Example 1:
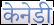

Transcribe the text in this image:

केनेडी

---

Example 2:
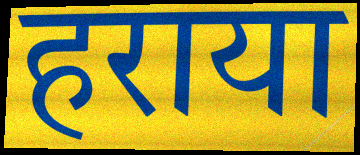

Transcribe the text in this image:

हराया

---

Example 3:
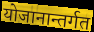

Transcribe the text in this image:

योजानान्तर्गत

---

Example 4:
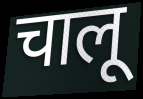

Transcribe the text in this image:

चालू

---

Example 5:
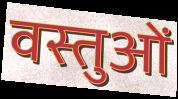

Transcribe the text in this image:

वस्‍तुओं